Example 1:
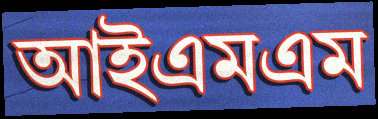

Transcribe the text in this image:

আইএমএম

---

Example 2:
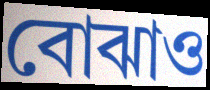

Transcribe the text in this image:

বোঝাও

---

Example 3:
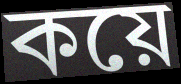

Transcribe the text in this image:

কয়ে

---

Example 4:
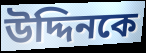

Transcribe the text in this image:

উদ্দিনকে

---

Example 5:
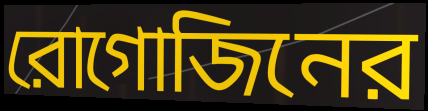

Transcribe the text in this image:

রোগোজিনের